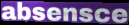
absensce